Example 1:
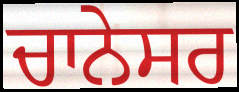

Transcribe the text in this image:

ਚਾਨੇਸਰ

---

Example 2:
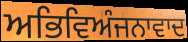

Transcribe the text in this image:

ਅਭਿਵਿਅੰਜਨਾਵਾਦ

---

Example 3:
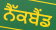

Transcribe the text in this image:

ਨੈੱਕਬੈਂਡ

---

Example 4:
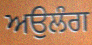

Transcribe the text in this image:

ਅਉਲੰਗ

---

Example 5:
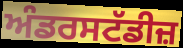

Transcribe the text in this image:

ਅੰਡਰਸਟੱਡੀਜ਼